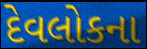
દેવલોકના